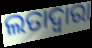
ଲତାଦ୍ୱାରା